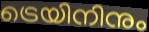
ട്രെയിനിനും